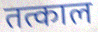
तत्‍काल